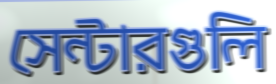
সেন্টারগুলি